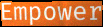
Empower